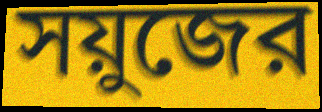
সয়ুজের